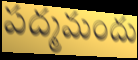
పద్మమందు